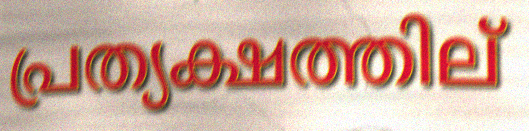
പ്രത്യക്ഷത്തില്